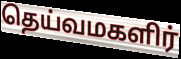
தெய்வமகளிர்